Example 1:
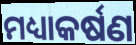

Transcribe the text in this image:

ମଧ୍ୟାକର୍ଷଣ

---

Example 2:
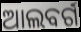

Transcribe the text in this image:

ଆଲବର୍ଗ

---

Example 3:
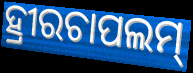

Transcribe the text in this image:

ହ୍ରୀରଚାପଲମ୍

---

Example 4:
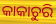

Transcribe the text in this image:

କାକାଚୁରି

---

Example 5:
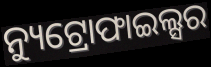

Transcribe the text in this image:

ନ୍ୟୁଟ୍ରୋଫାଇଲ୍ସର